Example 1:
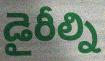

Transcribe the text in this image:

డైరీల్ని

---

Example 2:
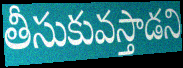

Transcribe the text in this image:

తీసుకువస్తాడని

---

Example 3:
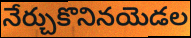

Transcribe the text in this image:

నేర్చుకొనినయెడల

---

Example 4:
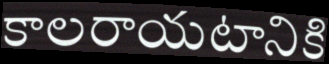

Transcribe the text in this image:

కాలరాయటానికి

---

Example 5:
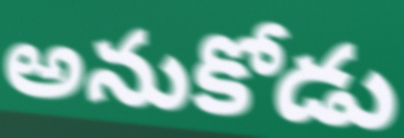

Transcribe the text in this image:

అనుకోడు